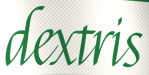
dextris